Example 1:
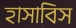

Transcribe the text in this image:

হাসাবিস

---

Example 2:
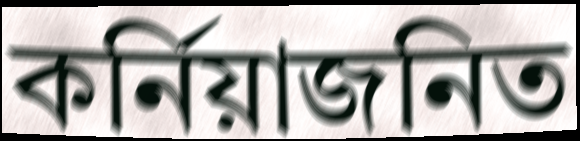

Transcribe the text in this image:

কর্নিয়াজনিত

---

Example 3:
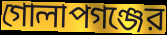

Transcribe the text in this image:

গোলাপগঞ্জের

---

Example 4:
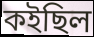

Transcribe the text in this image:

কইছিল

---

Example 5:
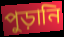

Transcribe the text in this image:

পুড়ানি